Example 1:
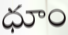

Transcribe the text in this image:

ధూం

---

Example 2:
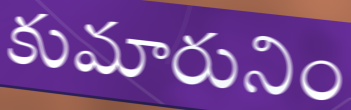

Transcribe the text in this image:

కుమారునిం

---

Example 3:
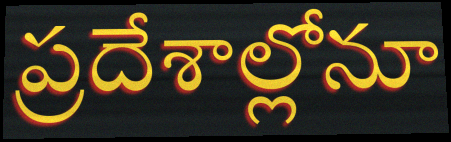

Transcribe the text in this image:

ప్రదేశాల్లోనూ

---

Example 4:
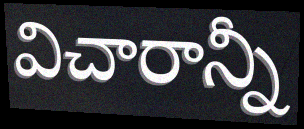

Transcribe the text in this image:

విచారాన్నీ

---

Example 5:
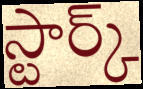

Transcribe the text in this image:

స్టార్క్